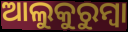
ଆଲୁକୁରୁମ୍ବା